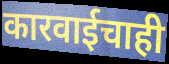
कारवाईचाही